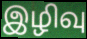
இழிவு